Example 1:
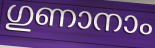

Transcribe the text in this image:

ഗുണാനാം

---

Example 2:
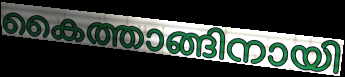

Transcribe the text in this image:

കൈത്താങ്ങിനായി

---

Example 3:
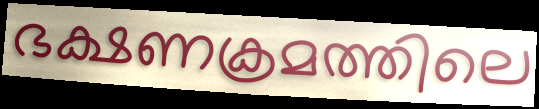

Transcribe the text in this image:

ഭക്ഷണക്രമത്തിലെ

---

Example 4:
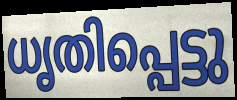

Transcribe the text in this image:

ധൃതിപ്പെട്ടു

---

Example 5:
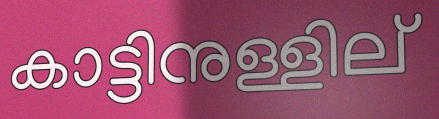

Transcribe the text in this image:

കാട്ടിനുള്ളില്